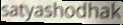
satyashodhak